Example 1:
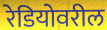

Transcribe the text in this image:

रेडियोवरील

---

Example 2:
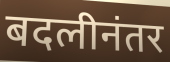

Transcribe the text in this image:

बदलीनंतर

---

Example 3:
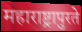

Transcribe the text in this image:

महाराष्ट्रापुरते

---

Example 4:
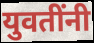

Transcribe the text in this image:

युवतींनी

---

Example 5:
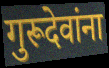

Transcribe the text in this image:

गुरूदेवांना